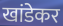
खांडेकर